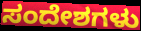
ಸಂದೇಶಗಳು